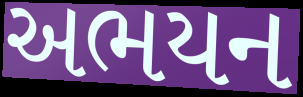
અભયન